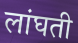
लांघती